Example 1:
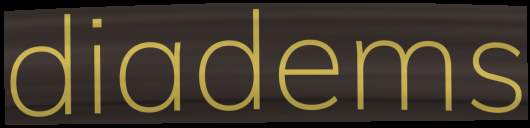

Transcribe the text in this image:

diadems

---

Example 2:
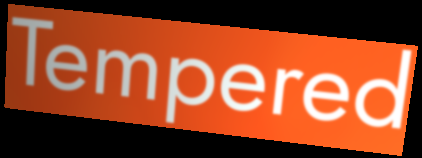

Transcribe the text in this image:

Tempered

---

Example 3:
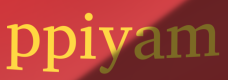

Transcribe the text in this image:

ppiyam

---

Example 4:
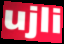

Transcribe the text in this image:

ujli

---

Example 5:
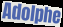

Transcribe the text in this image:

Adolphe